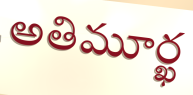
అతిమూర్ఖ